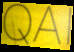
QAI